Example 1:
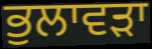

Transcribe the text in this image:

ਭੁਲਾਵੜਾ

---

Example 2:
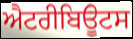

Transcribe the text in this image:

ਐਟਰੀਬਿਊਟਸ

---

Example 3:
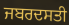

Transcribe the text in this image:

ਜਬਰਦਸਤੀ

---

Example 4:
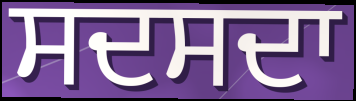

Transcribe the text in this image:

ਸਦਸਦਾ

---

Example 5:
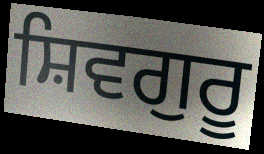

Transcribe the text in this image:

ਸ਼ਿਵਗੁਰੂ